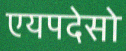
एयपदेसो